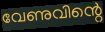
വേണുവിന്റെ